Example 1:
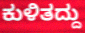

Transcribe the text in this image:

ಕುಳಿತದ್ದು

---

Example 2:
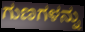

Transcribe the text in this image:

ಗುಣಗಳನ್ನು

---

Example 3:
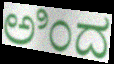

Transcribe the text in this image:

ಅಿಂದ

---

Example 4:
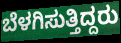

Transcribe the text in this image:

ಬೆಳಗಿಸುತ್ತಿದ್ದರು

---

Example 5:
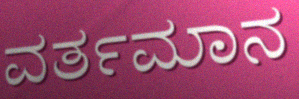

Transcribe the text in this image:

ವರ್ತಮಾನ